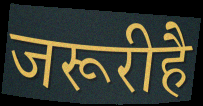
जरूरीहै